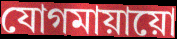
যোগমায়ায়ো